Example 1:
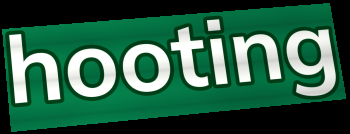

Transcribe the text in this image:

hooting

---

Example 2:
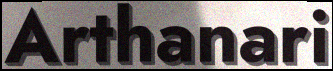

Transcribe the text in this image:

Arthanari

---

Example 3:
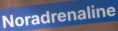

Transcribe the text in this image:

Noradrenaline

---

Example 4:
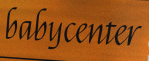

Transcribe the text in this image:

babycenter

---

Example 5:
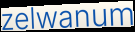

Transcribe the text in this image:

zelwanum